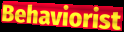
Behaviorist